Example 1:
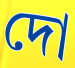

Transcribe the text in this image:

দো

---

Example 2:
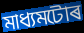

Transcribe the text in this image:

মাধ্যমটোৰ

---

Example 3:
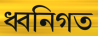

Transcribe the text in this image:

ধ্বনিগত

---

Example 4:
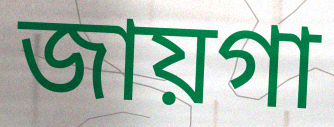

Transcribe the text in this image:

জায়গা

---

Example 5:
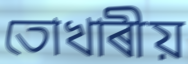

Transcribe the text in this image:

তোখাৰীয়